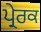
ਪ੍ਰੇਰਕ